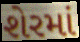
શેરમાં